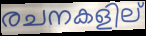
രചനകളില്